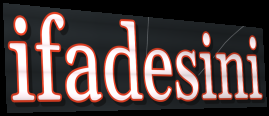
ifadesini